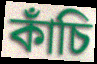
কাঁচি